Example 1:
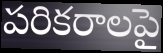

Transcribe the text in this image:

పరికరాలపై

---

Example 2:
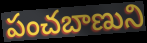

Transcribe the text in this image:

పంచబాణుని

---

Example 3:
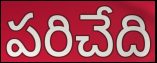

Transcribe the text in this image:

పరిచేది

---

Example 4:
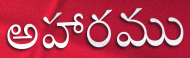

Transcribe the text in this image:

అహారము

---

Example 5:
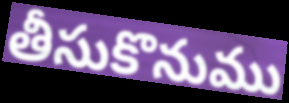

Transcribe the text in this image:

తీసుకొనుము